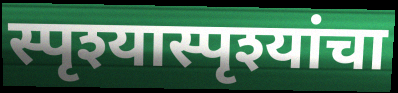
स्पृश्यास्पृश्यांचा